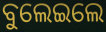
ବୁଲେଇଲେ